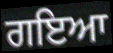
ਗਇਆ